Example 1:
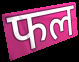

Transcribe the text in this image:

फल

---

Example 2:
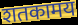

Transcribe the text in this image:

शतकामय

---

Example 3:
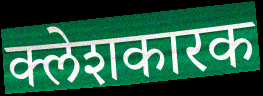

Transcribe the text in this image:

क्लेशकारक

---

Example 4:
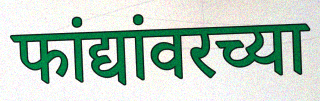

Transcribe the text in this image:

फांद्यांवरच्या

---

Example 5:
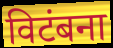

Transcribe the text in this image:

विटंबना